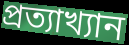
প্ৰত্যাখ্যান